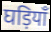
घड़ियाँ